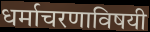
धर्माचरणाविषयी